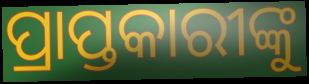
ପ୍ରାପ୍ତକାରୀଙ୍କୁ